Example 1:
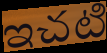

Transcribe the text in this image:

ఇచటి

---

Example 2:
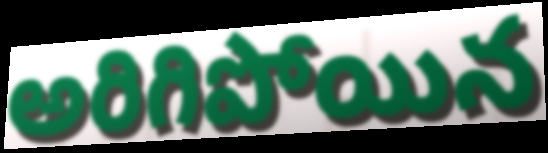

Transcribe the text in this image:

అరిగిపోయిన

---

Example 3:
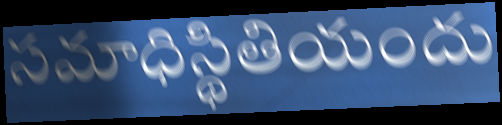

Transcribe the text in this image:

సమాధిస్థితియందు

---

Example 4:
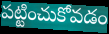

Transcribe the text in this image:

పట్టించుకోవడం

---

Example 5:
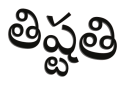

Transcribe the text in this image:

తిష్టతి